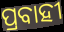
ପ୍ରବାହୀ